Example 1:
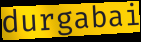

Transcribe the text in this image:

durgabai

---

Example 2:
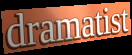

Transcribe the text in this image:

dramatist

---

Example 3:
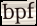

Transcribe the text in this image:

bpf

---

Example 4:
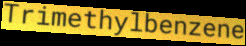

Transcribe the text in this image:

Trimethylbenzene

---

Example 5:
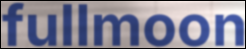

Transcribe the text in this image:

fullmoon